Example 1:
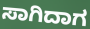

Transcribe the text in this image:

ಸಾಗಿದಾಗ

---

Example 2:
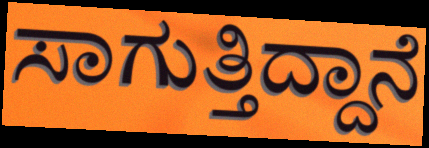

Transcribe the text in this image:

ಸಾಗುತ್ತಿದ್ದಾನೆ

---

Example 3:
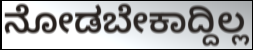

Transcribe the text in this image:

ನೋಡಬೇಕಾದ್ದಿಲ್ಲ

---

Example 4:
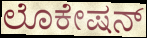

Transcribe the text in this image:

ಲೊಕೇಷನ್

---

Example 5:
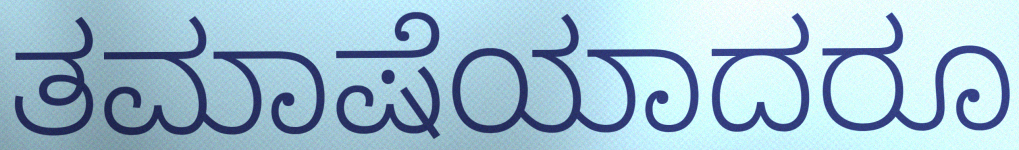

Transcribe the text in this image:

ತಮಾಷೆಯಾದರೂ